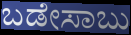
ಬಡೇಸಾಬು